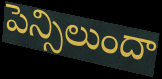
పెన్సిలుందా